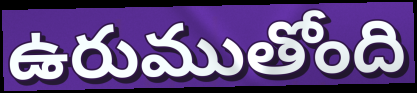
ఉరుముతోంది